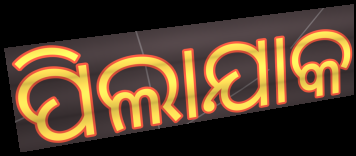
ପିଲାଯାକ